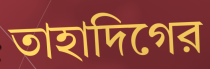
তাহাদিগের